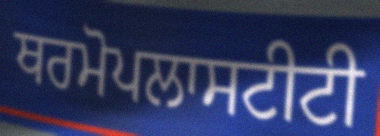
ਥਰਮੋਪਲਾਸਟੀਟੀ